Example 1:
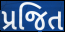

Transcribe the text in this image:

પ્રજિત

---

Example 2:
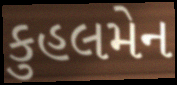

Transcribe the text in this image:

કુહલમેન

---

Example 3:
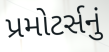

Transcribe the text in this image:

પ્રમોટર્સનું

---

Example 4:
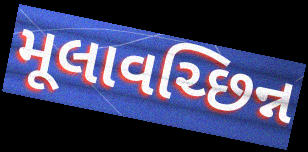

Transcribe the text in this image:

મૂલાવચ્છિન્ન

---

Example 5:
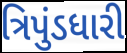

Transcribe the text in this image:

ત્રિપુંડધારી